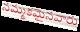
నమ్మకమైనవారు